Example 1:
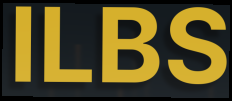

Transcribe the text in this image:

ILBS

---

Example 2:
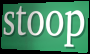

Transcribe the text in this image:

stoop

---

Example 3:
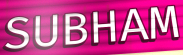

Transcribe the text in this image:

SUBHAM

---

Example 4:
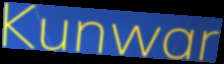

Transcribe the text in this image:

Kunwar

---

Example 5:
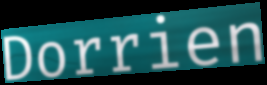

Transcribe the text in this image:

Dorrien